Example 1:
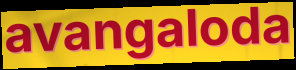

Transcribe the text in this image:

avangaloda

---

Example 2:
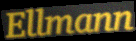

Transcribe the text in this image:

Ellmann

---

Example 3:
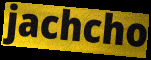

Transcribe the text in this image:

jachcho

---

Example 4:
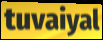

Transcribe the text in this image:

tuvaiyal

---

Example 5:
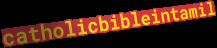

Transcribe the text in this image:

catholicbibleintamil